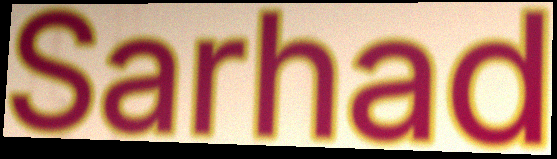
Sarhad